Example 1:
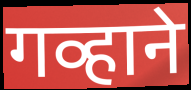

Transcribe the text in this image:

गव्हाने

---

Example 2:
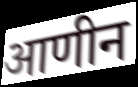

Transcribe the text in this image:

आणीन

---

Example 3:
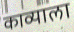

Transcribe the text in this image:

काव्याला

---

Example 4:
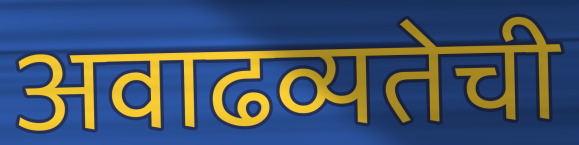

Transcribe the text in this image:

अवाढव्यतेची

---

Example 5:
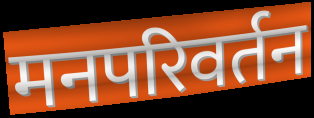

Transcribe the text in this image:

मनपरिवर्तन